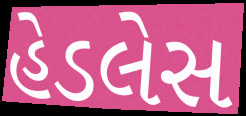
હેડલેસ